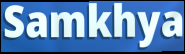
Samkhya